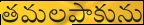
తమలపాకును